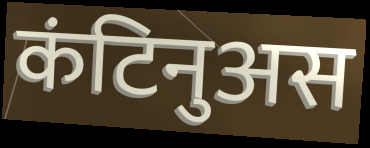
कंटिनुअस